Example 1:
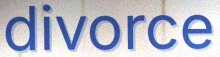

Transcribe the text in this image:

divorce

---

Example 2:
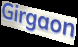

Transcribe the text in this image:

Girgaon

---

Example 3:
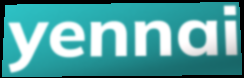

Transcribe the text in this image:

yennai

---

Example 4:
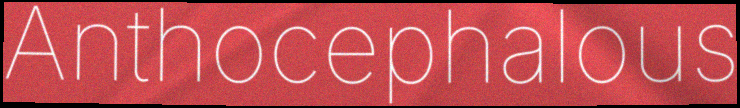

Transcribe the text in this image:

Anthocephalous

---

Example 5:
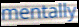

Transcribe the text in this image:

mentally